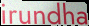
irundha